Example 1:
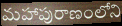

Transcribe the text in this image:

మహాపురాణంలోని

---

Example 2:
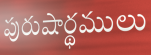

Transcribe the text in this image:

పురుషార్థములు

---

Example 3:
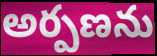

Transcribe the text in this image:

అర్పణను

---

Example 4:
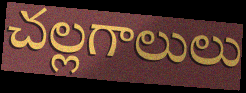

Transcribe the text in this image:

చల్లగాలులు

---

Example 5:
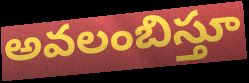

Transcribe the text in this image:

అవలంబిస్తూ